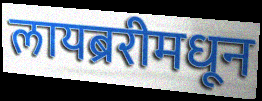
लायब्ररीमधून